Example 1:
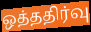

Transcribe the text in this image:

ஒத்ததிர்வு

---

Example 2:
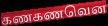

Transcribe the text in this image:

கணகணவென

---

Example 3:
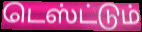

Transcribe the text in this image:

டெஸ்ட்டும்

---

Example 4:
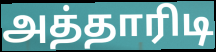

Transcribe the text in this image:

அத்தாரிடி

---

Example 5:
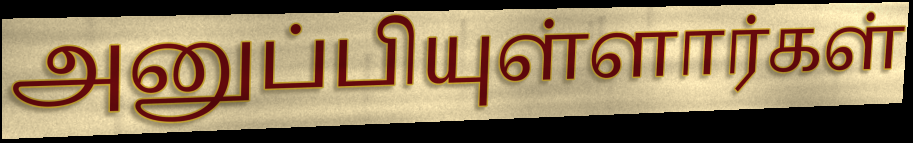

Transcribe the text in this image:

அனுப்பியுள்ளார்கள்